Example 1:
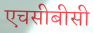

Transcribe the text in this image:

एचसीबीसी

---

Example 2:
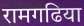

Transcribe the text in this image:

रामगढिया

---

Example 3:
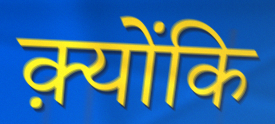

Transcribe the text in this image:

क़्योंकि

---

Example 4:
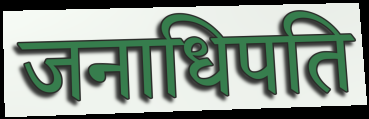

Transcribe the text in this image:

जनाधिपति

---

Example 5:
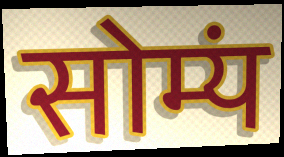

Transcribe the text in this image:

सोम्यं